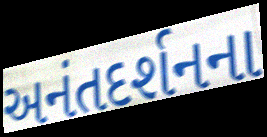
અનંતદર્શનના